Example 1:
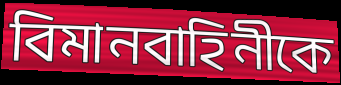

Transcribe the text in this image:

বিমানবাহিনীকে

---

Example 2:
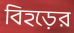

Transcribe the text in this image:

বিহড়ের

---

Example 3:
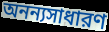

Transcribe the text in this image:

অনন্যসাধারণ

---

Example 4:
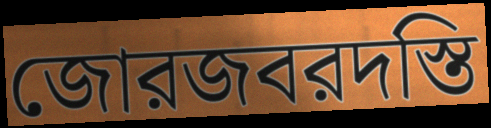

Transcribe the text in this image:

জোরজবরদস্তি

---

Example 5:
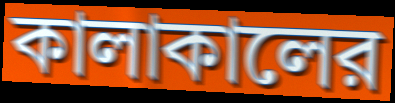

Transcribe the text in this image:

কালাকালের